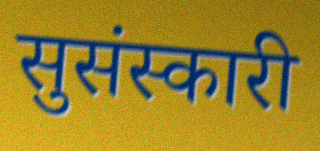
सुसंस्कारी